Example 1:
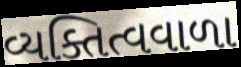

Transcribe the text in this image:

વ્યક્તિત્વવાળા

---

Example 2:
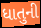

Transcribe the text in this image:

ધાતુની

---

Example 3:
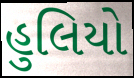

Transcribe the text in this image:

હુલિયો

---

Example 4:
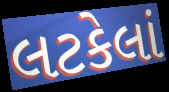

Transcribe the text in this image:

લટકેલાં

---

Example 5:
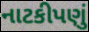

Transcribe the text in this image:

નાટકીપણું